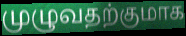
முழுவதற்குமாக